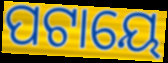
ପଟାୟେ